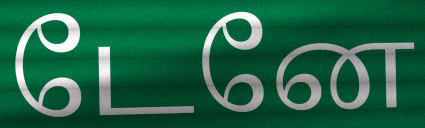
டேனே